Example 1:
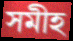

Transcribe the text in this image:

সমীহ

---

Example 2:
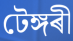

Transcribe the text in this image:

টেঙ্গৰী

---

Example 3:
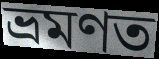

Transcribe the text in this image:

ভ্ৰমণত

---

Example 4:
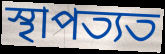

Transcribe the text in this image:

স্থাপত্যত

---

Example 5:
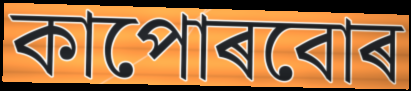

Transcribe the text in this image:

কাপোৰবোৰ